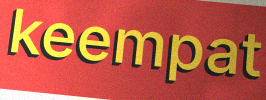
keempat